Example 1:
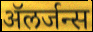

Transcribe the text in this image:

ॲलर्जन्स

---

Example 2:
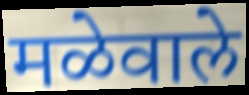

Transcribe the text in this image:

मळेवाले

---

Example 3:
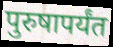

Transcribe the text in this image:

पुरुषापर्यंत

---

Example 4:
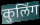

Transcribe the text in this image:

कुलिंग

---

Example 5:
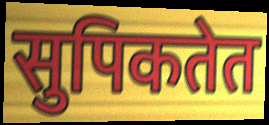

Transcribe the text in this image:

सुपिकतेत